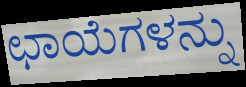
ಛಾಯೆಗಳನ್ನು